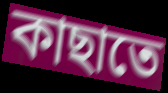
কাছাতে